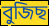
বুজিছ